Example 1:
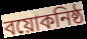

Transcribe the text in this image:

বয়োকনিষ্ঠ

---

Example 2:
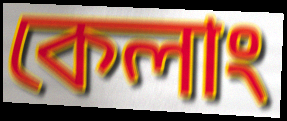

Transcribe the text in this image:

কেলাং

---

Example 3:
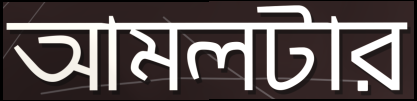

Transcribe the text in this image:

আমলটার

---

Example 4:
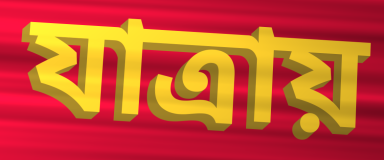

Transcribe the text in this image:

যাত্রায়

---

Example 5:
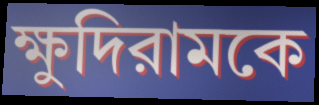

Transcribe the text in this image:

ক্ষুদিরামকে